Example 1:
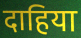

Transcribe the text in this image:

दाहिया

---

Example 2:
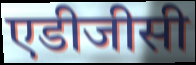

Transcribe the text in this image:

एडीजीसी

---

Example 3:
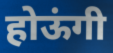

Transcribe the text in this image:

होऊंगी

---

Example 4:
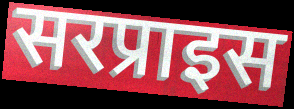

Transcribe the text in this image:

सरप्राइस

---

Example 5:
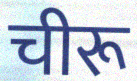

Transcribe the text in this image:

चीरू